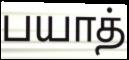
பயாத்